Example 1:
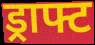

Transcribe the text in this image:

ड्राफ्ट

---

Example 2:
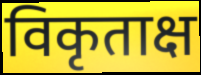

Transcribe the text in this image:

विकृताक्ष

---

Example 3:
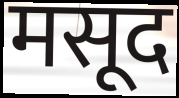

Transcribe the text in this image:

मसूद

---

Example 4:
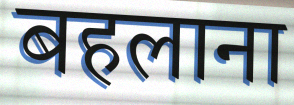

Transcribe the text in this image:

बहलाना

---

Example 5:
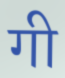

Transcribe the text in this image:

गी